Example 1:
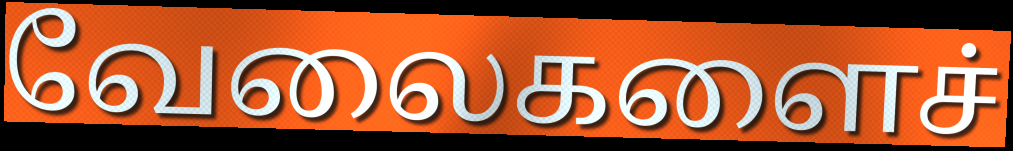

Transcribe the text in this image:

வேலைகளைச்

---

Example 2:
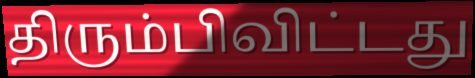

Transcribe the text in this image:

திரும்பிவிட்டது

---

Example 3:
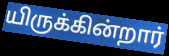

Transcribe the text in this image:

யிருக்கின்றார்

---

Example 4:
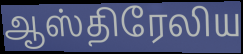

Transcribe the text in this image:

ஆஸ்திரேலிய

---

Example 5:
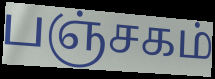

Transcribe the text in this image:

பஞ்சகம்